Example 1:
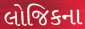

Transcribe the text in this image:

લોજિકના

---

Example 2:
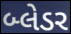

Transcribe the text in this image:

બ્લેડર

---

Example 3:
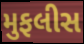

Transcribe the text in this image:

મુફલીસ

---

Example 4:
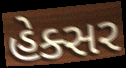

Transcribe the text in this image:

હેક્સર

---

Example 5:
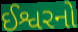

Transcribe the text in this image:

ઈશ્વરનો